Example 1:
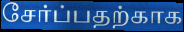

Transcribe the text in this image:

சேர்ப்பதற்காக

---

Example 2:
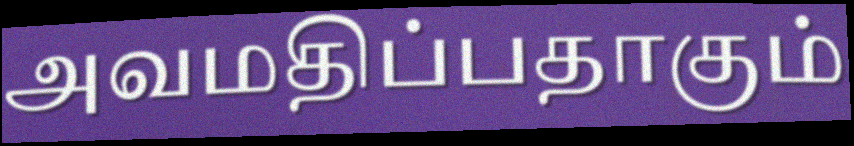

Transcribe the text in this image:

அவமதிப்பதாகும்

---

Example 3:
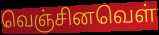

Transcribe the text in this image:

வெஞ்சினவெள்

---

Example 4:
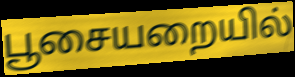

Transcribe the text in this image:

பூசையறையில்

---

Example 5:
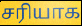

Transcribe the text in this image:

சரியாக